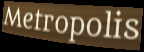
Metropolis